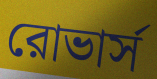
রোভার্স